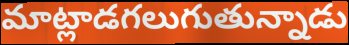
మాట్లాడగలుగుతున్నాడు